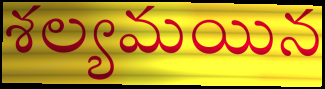
శల్యమయిన